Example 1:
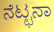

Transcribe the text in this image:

ನೆಟ್ಟನಾ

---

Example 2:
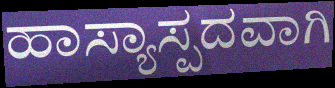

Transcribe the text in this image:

ಹಾಸ್ಯಾಸ್ಪದವಾಗಿ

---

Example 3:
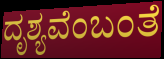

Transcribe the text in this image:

ದೃಶ್ಯವೆಂಬಂತೆ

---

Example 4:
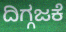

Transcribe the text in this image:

ದಿಗ್ಗಜಕೆ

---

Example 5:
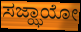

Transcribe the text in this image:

ಸಜ್ಝಾಯೋ